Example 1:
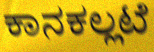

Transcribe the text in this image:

ಕಾನಕಲ್ಲಟೆ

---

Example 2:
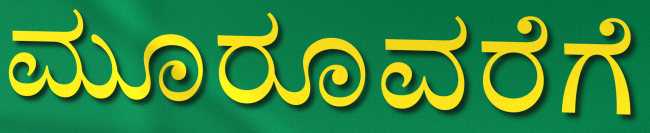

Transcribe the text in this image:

ಮೂರೂವರೆಗೆ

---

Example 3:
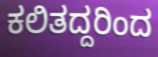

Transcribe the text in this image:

ಕಲಿತದ್ದರಿಂದ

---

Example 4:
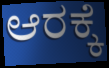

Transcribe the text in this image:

ಆರಕ್ಕೆ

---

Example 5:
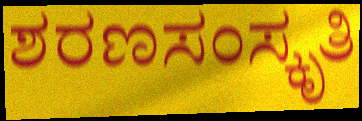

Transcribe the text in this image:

ಶರಣಸಂಸ್ಕೃತಿ